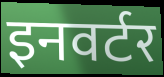
इनवर्टर